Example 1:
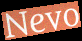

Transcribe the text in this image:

Nevo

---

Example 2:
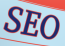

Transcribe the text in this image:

SEO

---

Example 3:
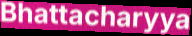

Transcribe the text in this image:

Bhattacharyya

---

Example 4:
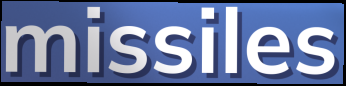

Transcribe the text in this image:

missiles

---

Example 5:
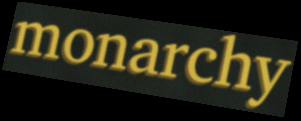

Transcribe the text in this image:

monarchy